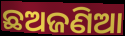
ଛଅଜଣିଆ